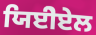
ਯਿਈੇਏਲ